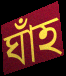
ঘাঁহ